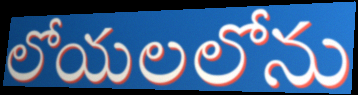
లోయలలోను